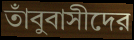
তাঁবুবাসীদের